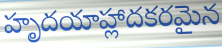
హృదయాహ్లాదకరమైన